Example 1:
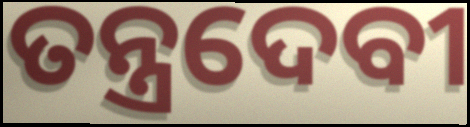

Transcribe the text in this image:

ତନ୍ତ୍ରଦେବୀ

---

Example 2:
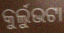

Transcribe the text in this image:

କୁର୍ଲୁଭଟା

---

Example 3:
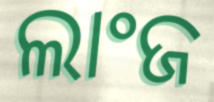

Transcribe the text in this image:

ଲାଂଜ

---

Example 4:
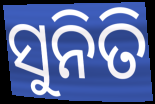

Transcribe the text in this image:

ସୁନିତି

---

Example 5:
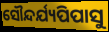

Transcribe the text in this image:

ସୌନ୍ଦର୍ଯ୍ୟପିପାସୁ